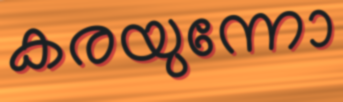
കരയുന്നോ